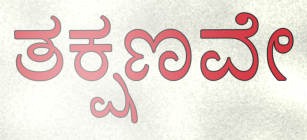
ತಕ್ಷಣವೇ